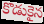
కొడుకైన